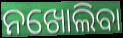
ନଖୋଲିବା